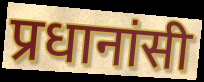
प्रधानांसी